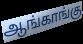
ஆங்காங்கு